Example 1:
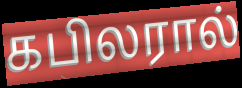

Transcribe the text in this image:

கபிலரால்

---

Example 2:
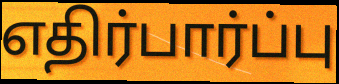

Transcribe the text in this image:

எதிர்பார்ப்பு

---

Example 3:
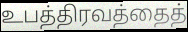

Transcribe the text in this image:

உபத்திரவத்தைத்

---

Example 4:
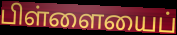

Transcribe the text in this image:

பிள்ளையைப்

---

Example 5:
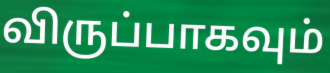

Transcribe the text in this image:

விருப்பாகவும்